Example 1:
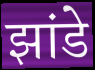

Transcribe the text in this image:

झांडे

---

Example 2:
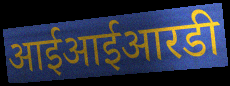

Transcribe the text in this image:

आईआईआरडी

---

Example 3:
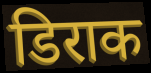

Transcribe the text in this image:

डिराक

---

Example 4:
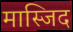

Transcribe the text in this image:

मास्जिद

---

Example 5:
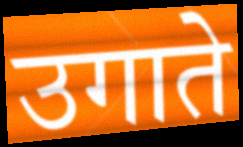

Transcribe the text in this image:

उगाते